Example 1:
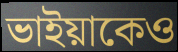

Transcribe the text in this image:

ভাইয়াকেও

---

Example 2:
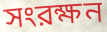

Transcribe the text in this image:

সংরক্ষন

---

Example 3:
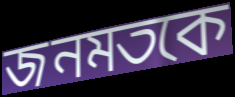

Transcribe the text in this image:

জনমতকে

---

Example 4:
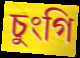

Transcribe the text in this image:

চুংগি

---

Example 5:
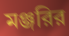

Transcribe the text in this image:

মঞ্জরির